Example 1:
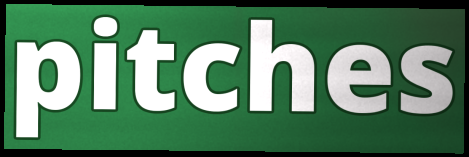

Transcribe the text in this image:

pitches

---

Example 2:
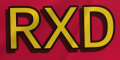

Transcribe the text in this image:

RXD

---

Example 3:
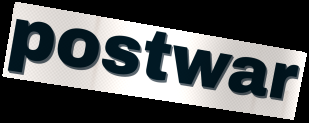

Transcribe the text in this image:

postwar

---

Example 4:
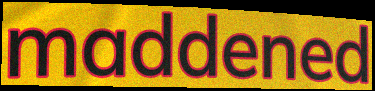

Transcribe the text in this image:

maddened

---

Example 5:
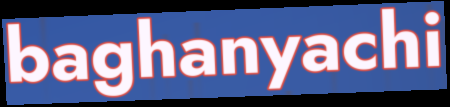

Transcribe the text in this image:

baghanyachi